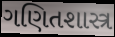
ગણિતશાસ્ત્ર